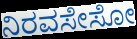
ನಿರವಸೇಸೋ